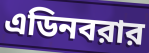
এডিনবরার